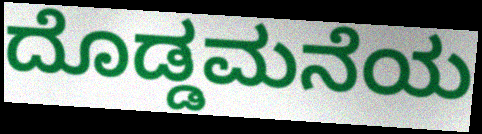
ದೊಡ್ಡಮನೆಯ